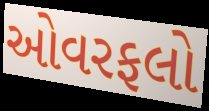
ઓવરફલો